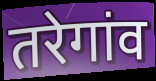
तरेगांव